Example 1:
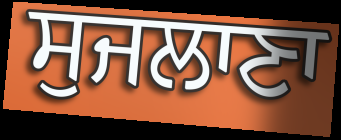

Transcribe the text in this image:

ਸੁਜਲਾਣਾ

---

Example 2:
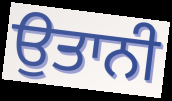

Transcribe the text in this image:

ਉਤਾਨੀ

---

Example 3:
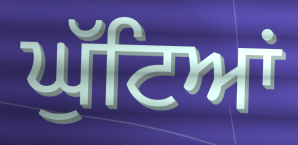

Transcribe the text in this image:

ਘੁੱਟਿਆਂ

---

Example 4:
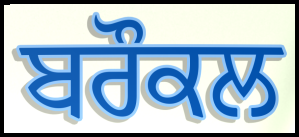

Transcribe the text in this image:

ਬਰੌਕਲ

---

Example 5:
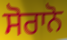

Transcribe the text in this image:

ਸੋਰਾਨੋ